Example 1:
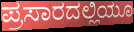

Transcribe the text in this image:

ಪ್ರಸಾರದಲ್ಲಿಯೂ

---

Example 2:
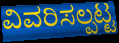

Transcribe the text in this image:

ವಿವರಿಸಲ್ಪಟ್ಟ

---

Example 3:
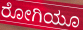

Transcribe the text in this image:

ರೋಗಿಯೂ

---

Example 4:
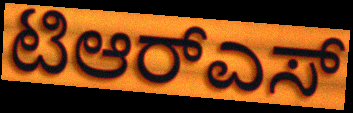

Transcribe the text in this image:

ಟಿಆರ್‌ಎಸ್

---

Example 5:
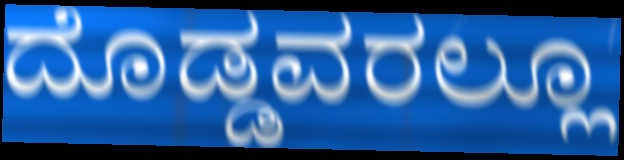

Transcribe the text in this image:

ದೊಡ್ಡವರಲ್ಲೂ